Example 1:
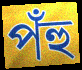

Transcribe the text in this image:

পঁহু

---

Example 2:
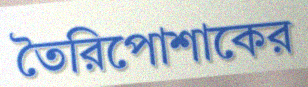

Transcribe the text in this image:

তৈরিপোশাকের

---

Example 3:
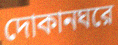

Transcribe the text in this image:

দোকানঘরে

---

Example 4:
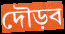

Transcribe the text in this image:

দৌড়ব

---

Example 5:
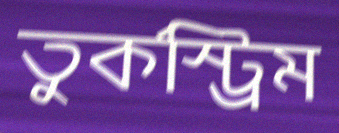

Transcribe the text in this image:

তুর্কস্ট্রিম